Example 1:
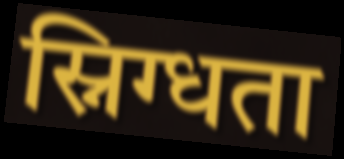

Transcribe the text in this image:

स्निग्धता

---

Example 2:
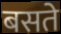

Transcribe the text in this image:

बसते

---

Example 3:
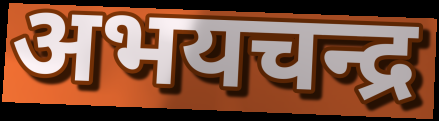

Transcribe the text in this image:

अभयचन्द्र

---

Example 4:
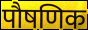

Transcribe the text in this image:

पौषणिक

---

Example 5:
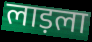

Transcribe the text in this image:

लाड़ला